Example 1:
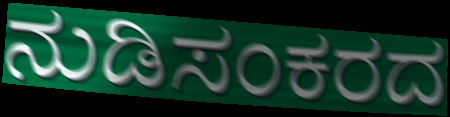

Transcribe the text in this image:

ನುಡಿಸಂಕರದ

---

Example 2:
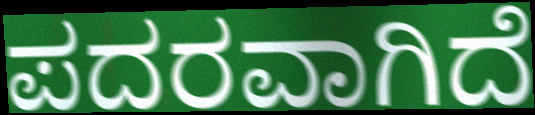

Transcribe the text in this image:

ಪದರವಾಗಿದೆ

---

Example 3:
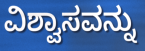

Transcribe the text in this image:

ವಿಶ್ವಾಸವನ್ನು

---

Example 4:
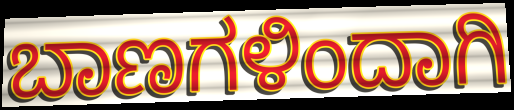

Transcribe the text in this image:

ಬಾಣಗಳಿಂದಾಗಿ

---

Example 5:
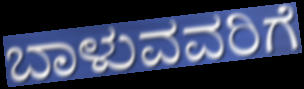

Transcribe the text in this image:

ಬಾಳುವವರಿಗೆ